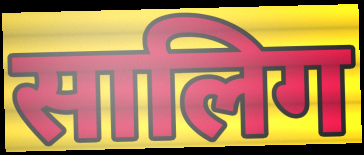
सालिग